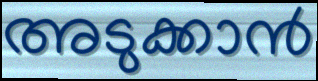
അടുക്കാൻ